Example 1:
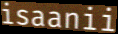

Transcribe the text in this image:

isaanii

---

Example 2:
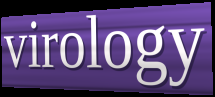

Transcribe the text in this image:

virology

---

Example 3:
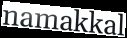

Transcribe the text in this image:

namakkal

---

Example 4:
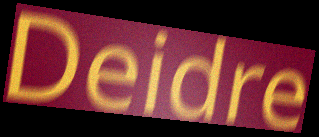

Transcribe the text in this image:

Deidre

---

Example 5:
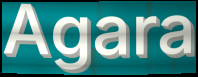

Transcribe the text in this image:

Agara